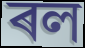
ৰল